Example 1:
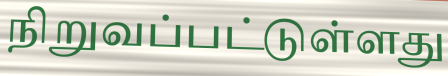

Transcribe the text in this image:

நிறுவப்பட்டுள்ளது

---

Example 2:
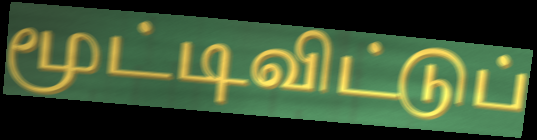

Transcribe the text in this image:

மூட்டிவிட்டுப்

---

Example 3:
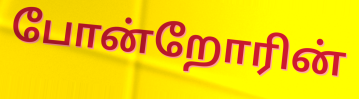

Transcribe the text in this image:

போன்றோரின்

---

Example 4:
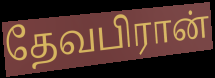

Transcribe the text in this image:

தேவபிரான்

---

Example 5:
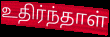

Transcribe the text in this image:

உதிர்ந்தாள்